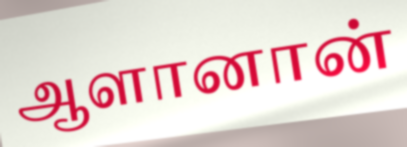
ஆளானான்